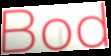
Bod